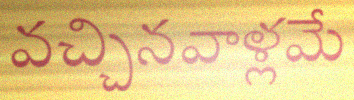
వచ్చినవాళ్లమే